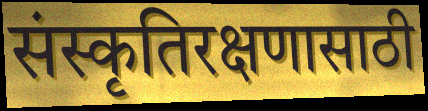
संस्कृतिरक्षणासाठी